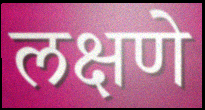
लक्षणे